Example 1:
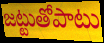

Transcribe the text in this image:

జట్టుతోపాటు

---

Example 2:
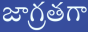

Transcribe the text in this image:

జాగ్రతగా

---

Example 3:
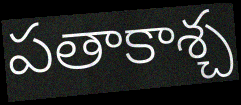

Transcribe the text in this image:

పతాకాశ్చ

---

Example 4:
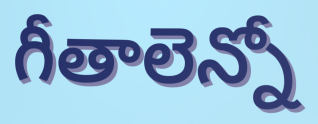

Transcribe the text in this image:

గీతాలెన్నో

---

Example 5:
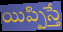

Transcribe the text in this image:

యిప్పిస్తే